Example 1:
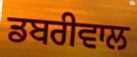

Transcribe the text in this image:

ਡਬਰੀਵਾਲ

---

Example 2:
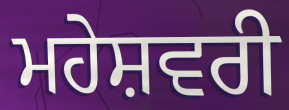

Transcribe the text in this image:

ਮਹੇਸ਼ਵਰੀ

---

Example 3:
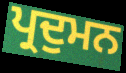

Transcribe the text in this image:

ਪ੍ਰਦੁਮਨ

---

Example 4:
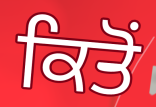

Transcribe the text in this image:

ਕਿਤੋਂ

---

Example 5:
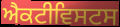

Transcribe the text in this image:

ਐਕਟੀਵਿਸਟਸ